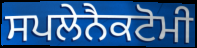
ਸਪਲੇਨੈਕਟੋਮੀ